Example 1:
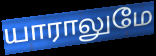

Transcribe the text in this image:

யாராலுமே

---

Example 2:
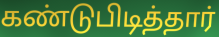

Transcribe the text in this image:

கண்டுபிடித்தார்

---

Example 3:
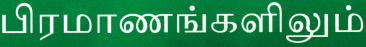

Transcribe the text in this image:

பிரமாணங்களிலும்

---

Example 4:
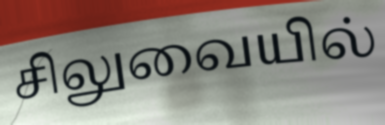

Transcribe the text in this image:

சிலுவையில்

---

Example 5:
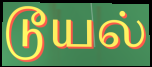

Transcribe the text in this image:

டூயல்